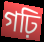
গঢ়ি